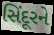
સિંદૂરને